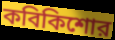
কবিকিশোর